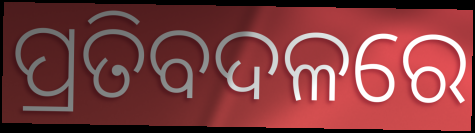
ପ୍ରତିବଦଳରେ